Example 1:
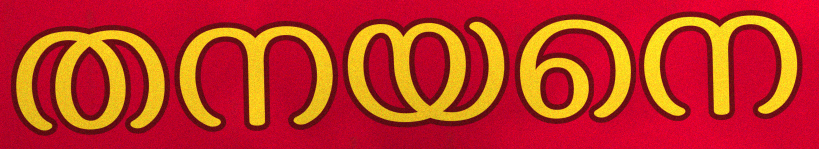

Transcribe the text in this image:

തനയനെ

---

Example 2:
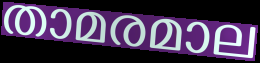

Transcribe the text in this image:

താമരമാല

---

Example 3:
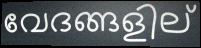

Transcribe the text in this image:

വേദങ്ങളില്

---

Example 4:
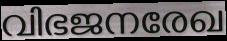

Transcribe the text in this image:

വിഭജനരേഖ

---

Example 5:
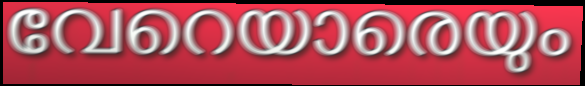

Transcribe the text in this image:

വേറെയാരെയും